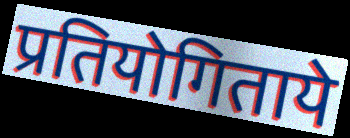
प्रतियोगिताये